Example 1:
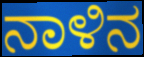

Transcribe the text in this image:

ನಾಳಿನ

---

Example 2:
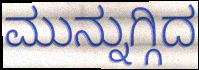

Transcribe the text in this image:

ಮುನ್ನುಗ್ಗಿದ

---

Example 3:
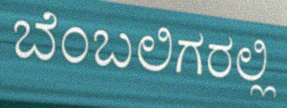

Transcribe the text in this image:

ಬೆಂಬಲಿಗರಲ್ಲಿ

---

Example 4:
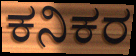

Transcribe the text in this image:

ಕನಿಕರ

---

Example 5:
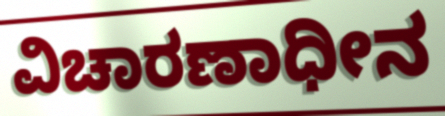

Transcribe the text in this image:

ವಿಚಾರಣಾಧೀನ